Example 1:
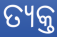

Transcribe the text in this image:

ତ୍ୟକ୍ତ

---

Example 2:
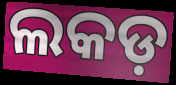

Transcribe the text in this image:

ଲକଡ଼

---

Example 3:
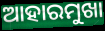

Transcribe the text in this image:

ଆହାରମୁଖା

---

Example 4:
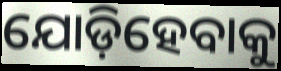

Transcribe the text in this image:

ଯୋଡ଼ିହେବାକୁ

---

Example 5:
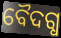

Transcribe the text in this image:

ବୈଦଗ୍ଧ